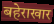
बहेराखार